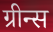
ग्रीन्स